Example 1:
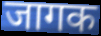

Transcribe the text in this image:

जागक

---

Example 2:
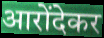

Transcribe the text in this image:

आरोंदेकर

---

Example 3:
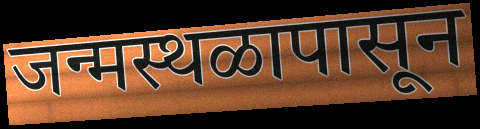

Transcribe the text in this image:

जन्मस्थळापासून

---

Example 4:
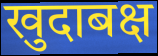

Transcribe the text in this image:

खुदाबक्ष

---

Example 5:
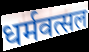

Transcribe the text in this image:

धर्मवत्सल